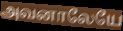
அவனாலேயே